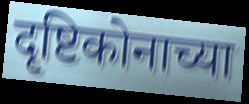
दृष्टिकोनाच्या